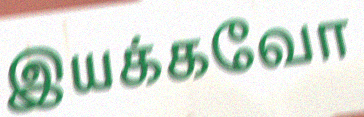
இயக்கவோ